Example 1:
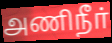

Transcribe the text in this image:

அணிநீர்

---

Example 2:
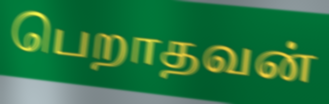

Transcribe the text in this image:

பெறாதவன்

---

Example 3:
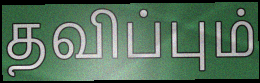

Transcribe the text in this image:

தவிப்பும்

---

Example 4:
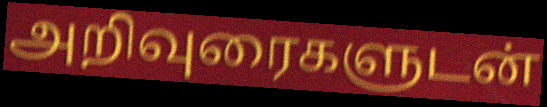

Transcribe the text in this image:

அறிவுரைகளுடன்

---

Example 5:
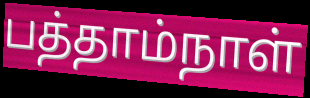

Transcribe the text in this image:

பத்தாம்நாள்